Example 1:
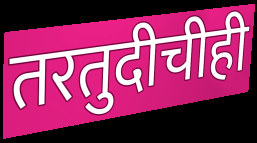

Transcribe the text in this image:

तरतुदीचीही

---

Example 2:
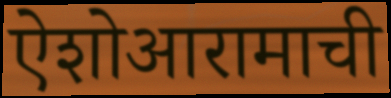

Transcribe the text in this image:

ऐशोआरामाची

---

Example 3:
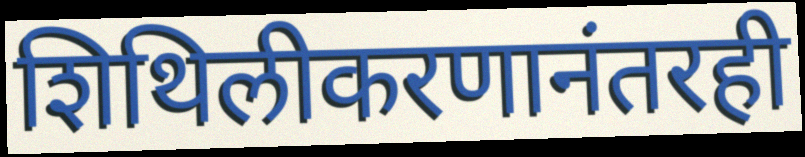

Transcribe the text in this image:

शिथिलीकरणानंतरही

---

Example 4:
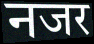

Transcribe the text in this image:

नजर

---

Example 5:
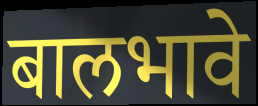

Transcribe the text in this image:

बालभावे